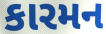
કારમન